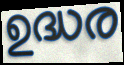
ഉദ്ധര